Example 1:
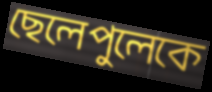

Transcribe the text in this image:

ছেলেপুলেকে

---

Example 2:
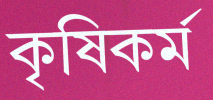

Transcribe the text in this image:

কৃষিকর্ম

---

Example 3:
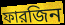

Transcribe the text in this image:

ফারজিন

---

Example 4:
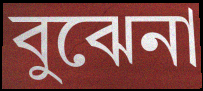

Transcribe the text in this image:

বুঝেনা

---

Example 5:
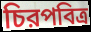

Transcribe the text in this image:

চিরপবিত্র